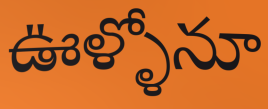
ఊళ్ళోనూ